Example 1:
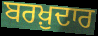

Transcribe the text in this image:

ਬਰਖ਼ੁਦਾਰ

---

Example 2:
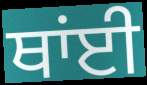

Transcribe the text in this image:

ਥਾਂਈ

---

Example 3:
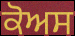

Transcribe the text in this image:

ਕੋਅਸ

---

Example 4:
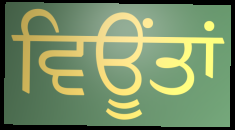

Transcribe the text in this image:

ਵਿਊਂਤਾਂ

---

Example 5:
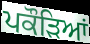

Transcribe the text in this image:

ਪਕੌਡ਼ਿਆਂ